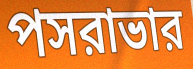
পসরাভার